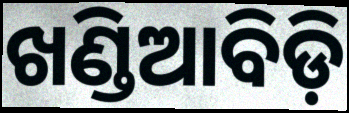
ଖଣ୍ଡିଆବିଡ଼ି